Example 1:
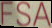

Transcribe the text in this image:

FSA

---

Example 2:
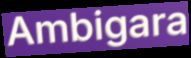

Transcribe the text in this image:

Ambigara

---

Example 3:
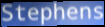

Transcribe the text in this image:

Stephens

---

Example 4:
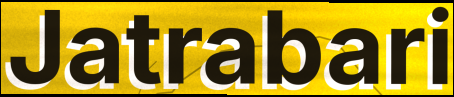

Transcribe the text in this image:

Jatrabari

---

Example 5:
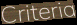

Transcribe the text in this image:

Criteria